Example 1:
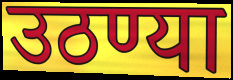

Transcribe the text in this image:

उठण्या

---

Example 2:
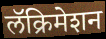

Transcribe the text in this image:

लॅक्रिमेशन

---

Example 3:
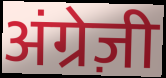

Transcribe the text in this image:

अंग्रेज़ी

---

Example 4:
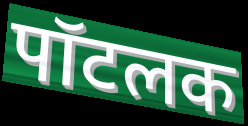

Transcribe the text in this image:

पॉटलक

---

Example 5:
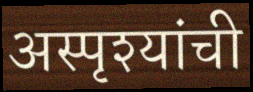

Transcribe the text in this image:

अस्पृश्यांची